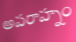
అపరాహ్నం